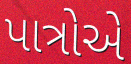
પાત્રોએ